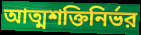
আত্মশক্তিনির্ভর